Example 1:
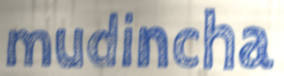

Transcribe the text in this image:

mudincha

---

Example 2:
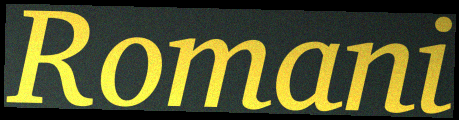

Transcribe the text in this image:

Romani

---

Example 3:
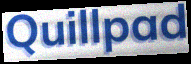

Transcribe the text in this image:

Quillpad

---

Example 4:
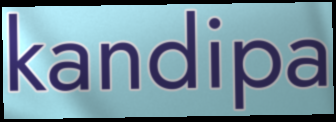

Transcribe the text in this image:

kandipa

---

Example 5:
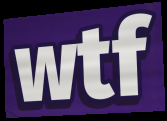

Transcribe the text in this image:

wtf